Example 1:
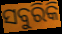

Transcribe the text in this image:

ସବୁରିକି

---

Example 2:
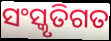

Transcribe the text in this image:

ସଂସ୍କୃତିଗତ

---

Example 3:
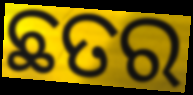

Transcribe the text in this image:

ଛତର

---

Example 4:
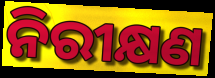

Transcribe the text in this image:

ନିରୀକ୍ଷଣ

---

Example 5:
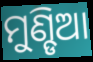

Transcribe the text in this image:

ମୁଣ୍ଡିଆ